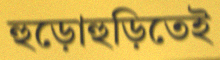
হুড়োহুড়িতেই